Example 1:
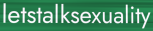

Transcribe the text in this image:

letstalksexuality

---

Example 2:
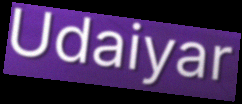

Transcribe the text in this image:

Udaiyar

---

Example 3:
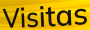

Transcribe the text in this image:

Visitas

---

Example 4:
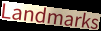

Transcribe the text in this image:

Landmarks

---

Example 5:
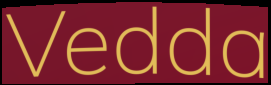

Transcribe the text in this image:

Vedda